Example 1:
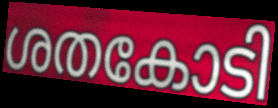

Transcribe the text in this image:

ശതകോടി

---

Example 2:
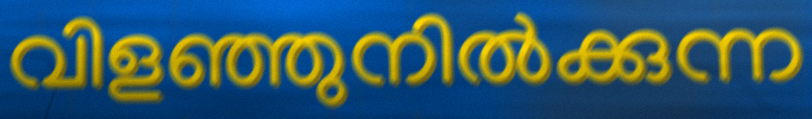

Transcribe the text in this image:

വിളഞ്ഞുനിൽക്കുന്ന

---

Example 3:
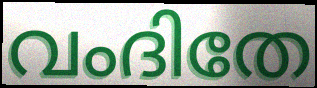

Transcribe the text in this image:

വംദിതേ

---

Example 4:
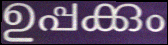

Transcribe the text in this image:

ഉപ്പക്കും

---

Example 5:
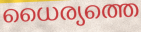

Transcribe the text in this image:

ധൈര്യത്തെ